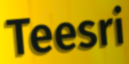
Teesri